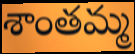
శాంతమ్మ